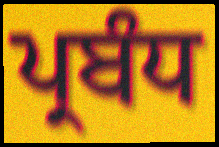
ਪ੍ਰਬੰਧ